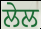
ਲੇਲ